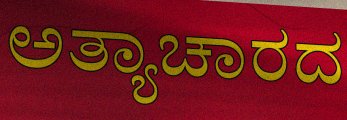
ಅತ್ಯಾಚಾರದ